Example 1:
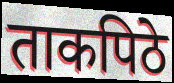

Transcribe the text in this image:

ताकपिठे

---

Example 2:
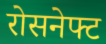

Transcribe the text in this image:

रोसनेफ्ट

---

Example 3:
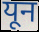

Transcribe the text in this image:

यून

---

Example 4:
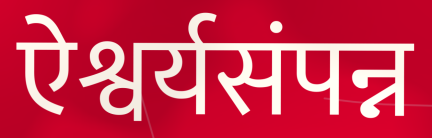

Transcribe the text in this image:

ऐश्वर्यसंपन्न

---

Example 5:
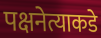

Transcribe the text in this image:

पक्षनेत्याकडे